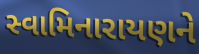
સ્વામિનારાયણને